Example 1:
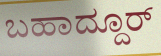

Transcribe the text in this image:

ಬಹಾದ್ದೂರ್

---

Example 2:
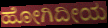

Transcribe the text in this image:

ಹೋಗಿದೀಯ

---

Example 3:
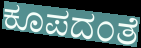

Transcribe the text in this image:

ಕೂಪದಂತೆ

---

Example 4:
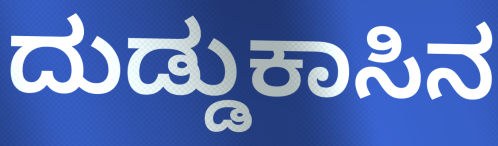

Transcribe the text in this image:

ದುಡ್ಡುಕಾಸಿನ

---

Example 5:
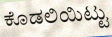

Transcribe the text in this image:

ಕೊಡಲಿಯಿಟ್ಟು